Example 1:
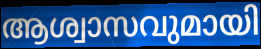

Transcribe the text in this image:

ആശ്വാസവുമായി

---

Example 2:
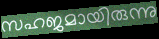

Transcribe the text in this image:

സഹജമായിരുന്നു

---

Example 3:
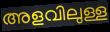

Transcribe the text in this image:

അളവിലുള്ള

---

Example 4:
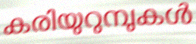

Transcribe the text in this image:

കരിയുറുമ്പുകൾ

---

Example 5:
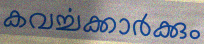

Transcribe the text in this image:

കവൎച്ചക്കാർക്കും